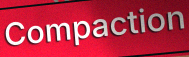
Compaction